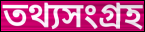
তথ্যসংগ্ৰহ